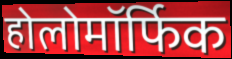
होलोमॉर्फिक